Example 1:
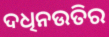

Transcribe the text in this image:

ଦଧିନଉତିର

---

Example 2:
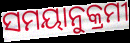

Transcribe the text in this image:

ସମୟାନୁକ୍ରମୀ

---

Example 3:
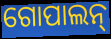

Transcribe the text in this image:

ଗୋପାଲନ୍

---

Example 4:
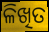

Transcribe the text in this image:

ଳିଖିତ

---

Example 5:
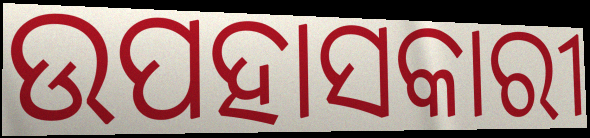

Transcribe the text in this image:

ଉପହାସକାରୀ